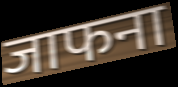
जाफना